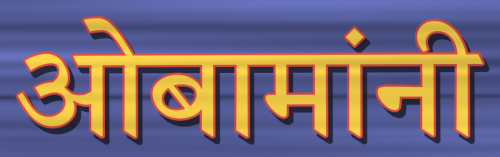
ओबामांनी